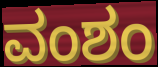
ವಂಶಂ